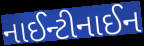
નાઈન્ટીનાઈન